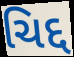
ચિદ્દ